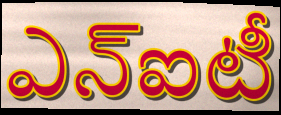
ఎన్ఐటీ